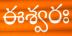
ఈశ్వరః